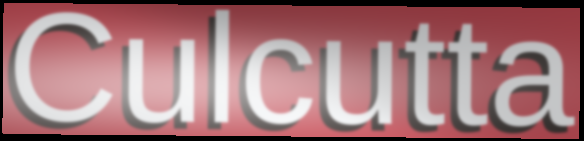
Culcutta